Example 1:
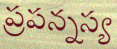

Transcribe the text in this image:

ప్రపన్నస్య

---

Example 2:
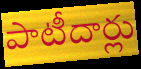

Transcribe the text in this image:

పాటీదార్లు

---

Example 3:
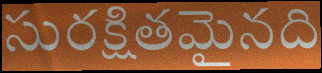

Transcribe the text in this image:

సురక్షితమైనది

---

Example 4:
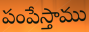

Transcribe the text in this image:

పంపేస్తాము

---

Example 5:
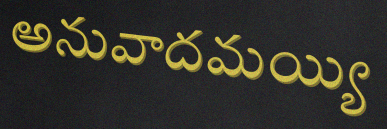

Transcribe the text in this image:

అనువాదమయ్యి